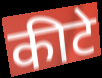
कीटे